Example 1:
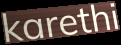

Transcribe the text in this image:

karethi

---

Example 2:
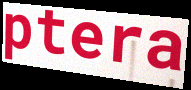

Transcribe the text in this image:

ptera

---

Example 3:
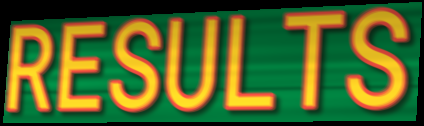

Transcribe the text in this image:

RESULTS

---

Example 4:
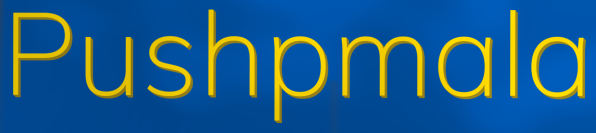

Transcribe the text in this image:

Pushpmala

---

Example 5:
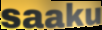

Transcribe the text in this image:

saaku